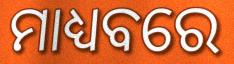
ମାଧ୍ୟବରେ